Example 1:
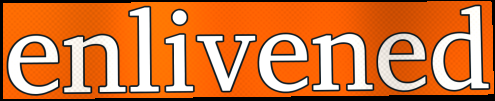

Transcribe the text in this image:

enlivened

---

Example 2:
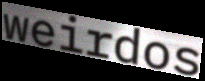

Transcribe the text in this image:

weirdos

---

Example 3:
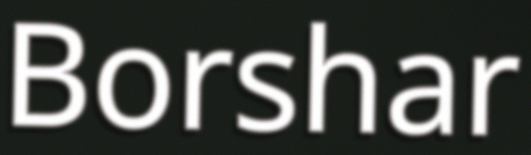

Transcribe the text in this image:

Borshar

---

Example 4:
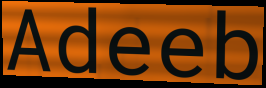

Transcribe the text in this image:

Adeeb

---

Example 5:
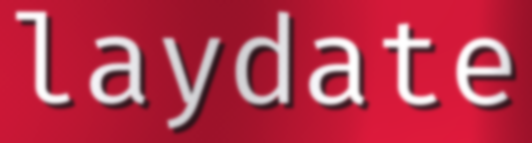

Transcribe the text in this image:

laydate